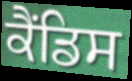
ਕੈਂਡਿਸ